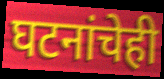
घटनांचेही